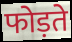
फोड़ते